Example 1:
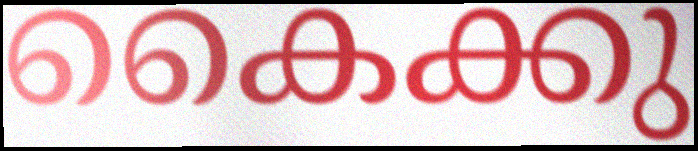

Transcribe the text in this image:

കൈക്കു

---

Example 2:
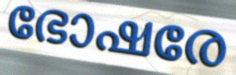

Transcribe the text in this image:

ഭോഷരേ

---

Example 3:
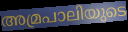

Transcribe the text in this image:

അമ്രപാലിയുടെ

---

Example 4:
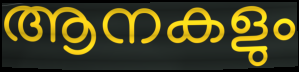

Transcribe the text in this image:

ആനകളും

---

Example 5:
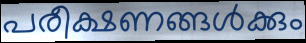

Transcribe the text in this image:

പരീക്ഷണങ്ങൾക്കും